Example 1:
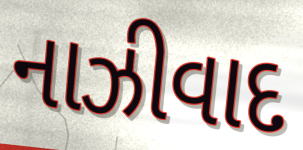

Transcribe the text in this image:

નાઝીવાદ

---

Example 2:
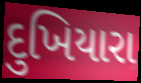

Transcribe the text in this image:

દુખિયારા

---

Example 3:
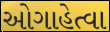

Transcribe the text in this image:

ઓગાહેત્વા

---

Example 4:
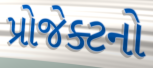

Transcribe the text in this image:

પ્રોજેક્ટનો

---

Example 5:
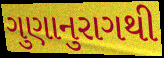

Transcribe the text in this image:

ગુણાનુરાગથી